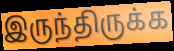
இருந்திருக்க